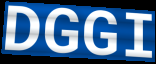
DGGI